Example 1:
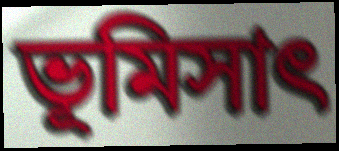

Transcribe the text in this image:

ভূমিসাৎ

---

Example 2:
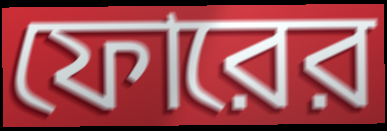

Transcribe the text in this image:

ফোরের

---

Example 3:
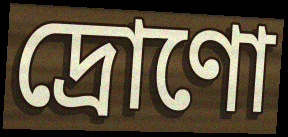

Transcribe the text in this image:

দ্রোণো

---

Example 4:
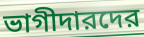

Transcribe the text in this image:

ভাগীদারদের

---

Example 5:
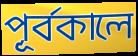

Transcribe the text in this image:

পূর্বকালে